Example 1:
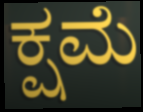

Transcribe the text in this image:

ಕ್ಷಮೆ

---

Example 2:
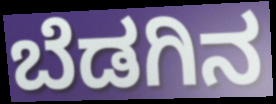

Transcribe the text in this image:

ಬೆಡಗಿನ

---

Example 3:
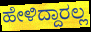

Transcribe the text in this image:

ಹೇಳಿದ್ದಾರಲ್ಲ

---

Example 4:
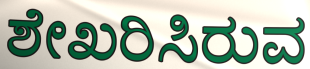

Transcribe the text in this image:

ಶೇಖರಿಸಿರುವ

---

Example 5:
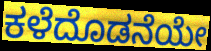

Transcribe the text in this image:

ಕಳೆದೊಡನೆಯೇ